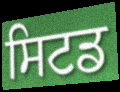
ਸਿਟਡ